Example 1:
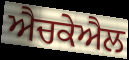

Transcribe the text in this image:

ਐਚਕੇਐਲ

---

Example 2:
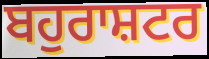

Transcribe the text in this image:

ਬਹੁਰਾਸ਼ਟਰ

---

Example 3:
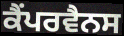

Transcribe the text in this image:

ਕੈਂਪਰਵੈਨਸ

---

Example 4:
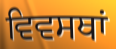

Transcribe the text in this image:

ਵਿਵਸਥਾਂ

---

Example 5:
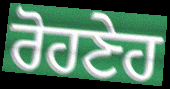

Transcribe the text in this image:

ਰੋਹਣੇਹ